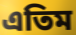
এতিম